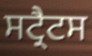
ਸਟ੍ਰੈਟਸ